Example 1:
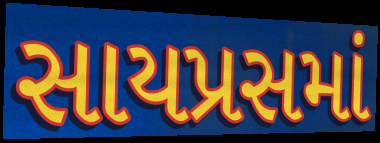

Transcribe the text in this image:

સાયપ્રસમાં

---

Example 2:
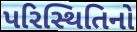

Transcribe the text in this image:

પરિસ્થિતિનો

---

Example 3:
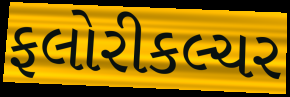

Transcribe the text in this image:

ફલોરીકલ્ચર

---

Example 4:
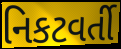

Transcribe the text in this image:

નિકટવર્તી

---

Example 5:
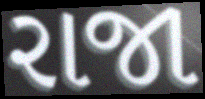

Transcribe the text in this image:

રાજા